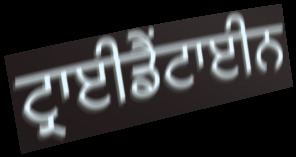
ਟ੍ਰਾਈਡੈਂਟਾਈਨ